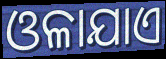
ଓଳାଯାଏ